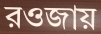
রওজায়